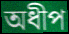
অধীপ